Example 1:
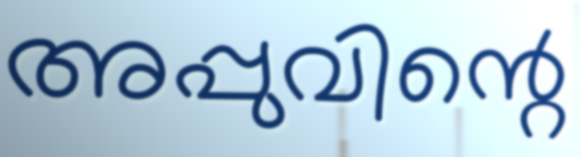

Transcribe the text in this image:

അപ്പുവിന്റെ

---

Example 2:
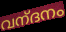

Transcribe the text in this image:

വന്‌ദനം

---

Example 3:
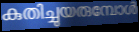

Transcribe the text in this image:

കുതിച്ചുയരുമ്പോൾ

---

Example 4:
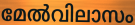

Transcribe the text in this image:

മേൽവിലാസം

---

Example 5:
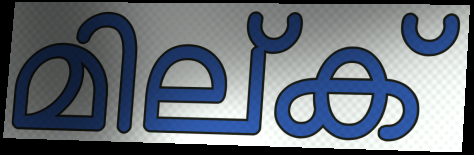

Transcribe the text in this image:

മില്ക്